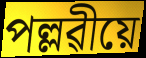
পল্লৱীয়ে